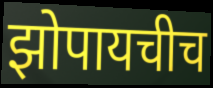
झोपायचीच